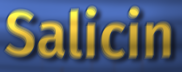
Salicin